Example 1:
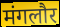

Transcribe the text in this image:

मंगलौर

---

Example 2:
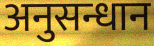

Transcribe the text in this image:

अनुसन्धान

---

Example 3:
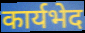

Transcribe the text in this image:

कार्यभेद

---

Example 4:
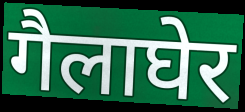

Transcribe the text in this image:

गैलाघेर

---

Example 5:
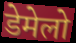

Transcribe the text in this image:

डेमेलो